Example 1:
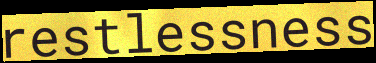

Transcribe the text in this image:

restlessness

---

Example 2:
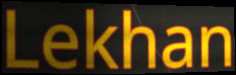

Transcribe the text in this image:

Lekhan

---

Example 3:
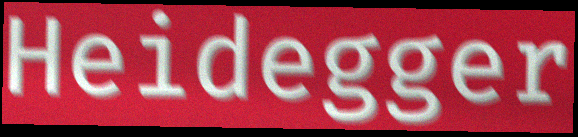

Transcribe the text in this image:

Heidegger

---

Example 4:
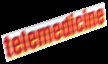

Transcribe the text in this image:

telemedicine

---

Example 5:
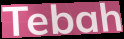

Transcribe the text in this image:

Tebah